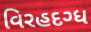
વિરહદગ્ધ